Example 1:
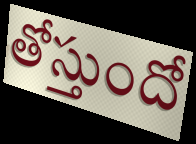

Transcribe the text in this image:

తోస్తుందో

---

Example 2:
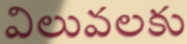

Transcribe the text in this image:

విలువలకు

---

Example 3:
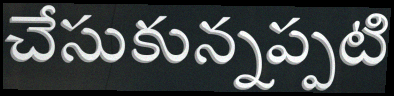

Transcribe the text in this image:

చేసుకున్నప్పటి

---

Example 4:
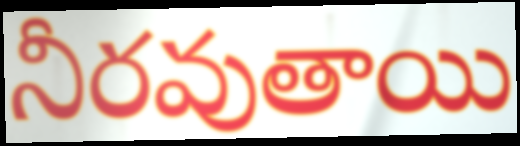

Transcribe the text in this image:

నీరవుతాయి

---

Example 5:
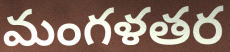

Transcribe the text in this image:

మంగళతర